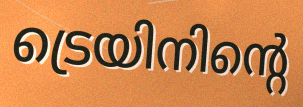
ട്രെയിനിന്റെ